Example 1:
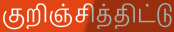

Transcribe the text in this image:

குறிஞ்சித்திட்டு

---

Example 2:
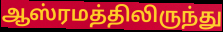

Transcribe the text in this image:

ஆஸ்ரமத்திலிருந்து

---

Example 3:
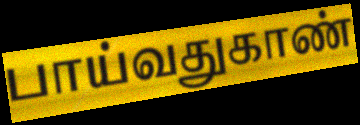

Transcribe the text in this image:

பாய்வதுகாண்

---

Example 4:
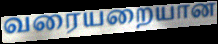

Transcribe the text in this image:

வரையறையான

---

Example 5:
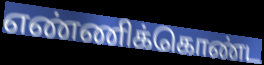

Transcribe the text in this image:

எண்ணிக்கொண்ட